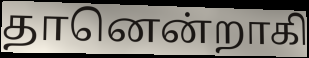
தானென்றாகி